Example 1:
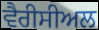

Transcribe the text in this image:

ਵੈਰੀਸੀਅਲ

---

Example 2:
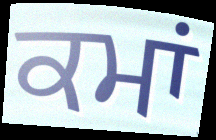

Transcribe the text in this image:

ਕਮਾਂ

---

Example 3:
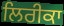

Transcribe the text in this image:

ਲਿਰੀਕਾ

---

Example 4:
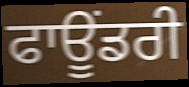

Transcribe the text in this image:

ਫਾਊਂਡਰੀ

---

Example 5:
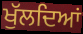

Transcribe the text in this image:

ਖੁੱਲਦਿਆਂ